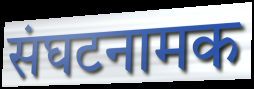
संघटनामक